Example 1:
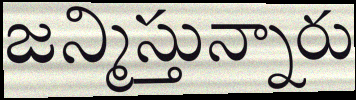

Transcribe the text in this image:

జన్మిస్తున్నారు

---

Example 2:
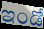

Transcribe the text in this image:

ఇండో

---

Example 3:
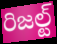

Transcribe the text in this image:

రిజల్ట్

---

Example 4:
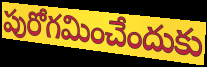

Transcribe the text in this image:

పురోగమించేందుకు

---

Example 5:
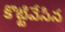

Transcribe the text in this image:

కొట్టివేసిన